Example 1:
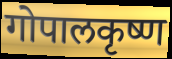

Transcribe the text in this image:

गोपालकृष्ण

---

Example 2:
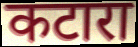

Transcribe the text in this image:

कटारा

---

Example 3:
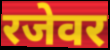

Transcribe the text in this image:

रजेवर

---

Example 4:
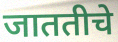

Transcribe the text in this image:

जाततीचे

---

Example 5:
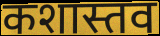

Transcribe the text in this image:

कशास्तव